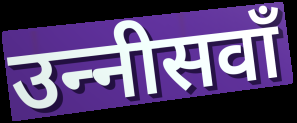
उन्‍नीसवाँ